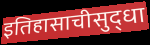
इतिहासाचीसुद्धा